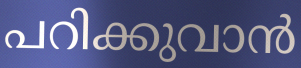
പറിക്കുവാൻ